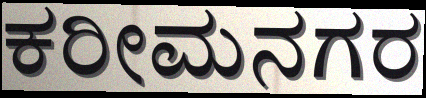
ಕರೀಮನಗರ